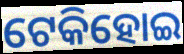
ଟେକିହୋଇ